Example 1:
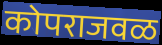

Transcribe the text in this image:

कोपराजवळ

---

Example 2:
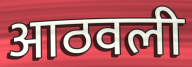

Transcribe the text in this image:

आठवली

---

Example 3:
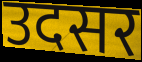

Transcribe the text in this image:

उदसर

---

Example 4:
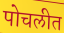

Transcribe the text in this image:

पोचलीत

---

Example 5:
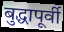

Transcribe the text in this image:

बुद्धापूर्वी